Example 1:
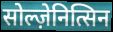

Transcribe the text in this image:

सोल्ज़ेनित्सिन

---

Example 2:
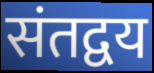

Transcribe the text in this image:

संतद्वय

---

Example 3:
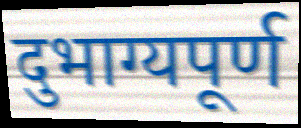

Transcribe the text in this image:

दुभाग्यपूर्ण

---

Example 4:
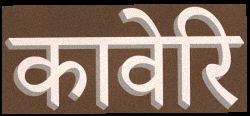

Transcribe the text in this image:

कावेरि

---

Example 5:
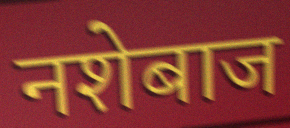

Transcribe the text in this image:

नशेबाज